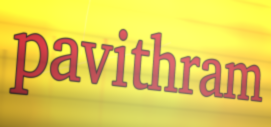
pavithram